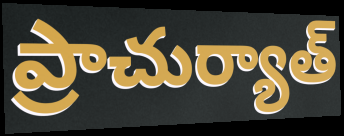
ప్రాచుర్యాత్